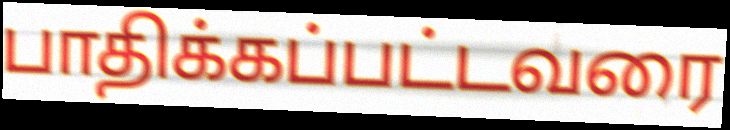
பாதிக்கப்பட்டவரை